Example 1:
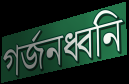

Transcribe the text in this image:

গর্জনধ্বনি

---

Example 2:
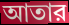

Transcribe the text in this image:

আতার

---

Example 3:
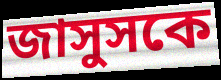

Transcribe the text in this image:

জাসুসকে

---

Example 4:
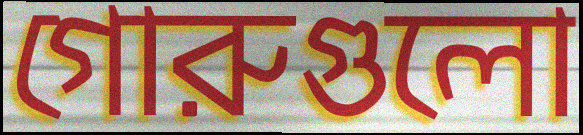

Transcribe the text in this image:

গোরুগুলো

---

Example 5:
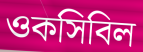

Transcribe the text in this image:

ওকসিবিল